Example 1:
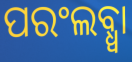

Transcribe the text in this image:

ପରଂଲବ୍ଧ୍ଵା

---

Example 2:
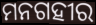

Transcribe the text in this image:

ମନଗହୀର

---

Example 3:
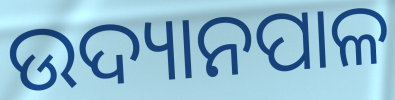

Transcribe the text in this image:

ଉଦ୍ୟାନପାଳ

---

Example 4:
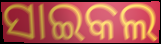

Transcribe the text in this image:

ସାଇକଲ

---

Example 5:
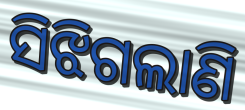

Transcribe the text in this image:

ସିଝିଗଲାଣି